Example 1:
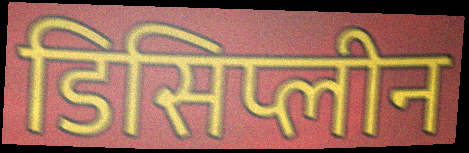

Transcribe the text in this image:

डिसिप्लीन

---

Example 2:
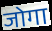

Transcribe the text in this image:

जोगा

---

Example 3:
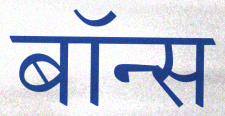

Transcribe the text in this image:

बॉन्स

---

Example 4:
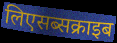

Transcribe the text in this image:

लिएसब्सक्राइब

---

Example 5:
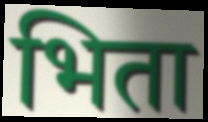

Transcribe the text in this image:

भिता